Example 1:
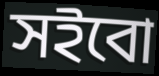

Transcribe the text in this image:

সইবো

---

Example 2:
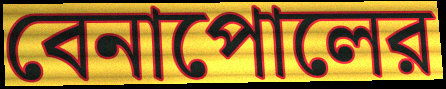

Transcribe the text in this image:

বেনাপোলের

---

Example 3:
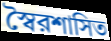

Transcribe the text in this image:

স্বৈরশাসিত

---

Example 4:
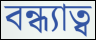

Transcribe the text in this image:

বন্ধ্যাত্ব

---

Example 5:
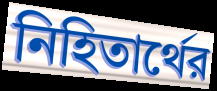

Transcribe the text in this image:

নিহিতার্থের